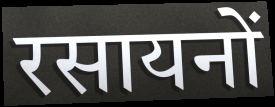
रसायनों